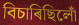
বিচাৰিছিলোঁ